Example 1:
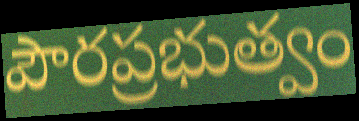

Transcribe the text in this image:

పౌరప్రభుత్వం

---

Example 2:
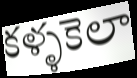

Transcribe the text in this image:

కళ్ళకెలా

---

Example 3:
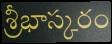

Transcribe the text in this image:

శ్రీభాస్కరం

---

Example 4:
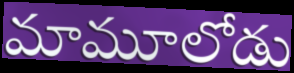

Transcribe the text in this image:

మామూలోడు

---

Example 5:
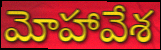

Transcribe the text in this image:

మోహావేశ